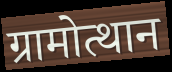
ग्रामोत्थान